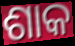
ଶାକ